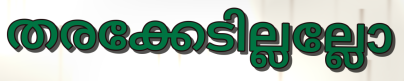
തരക്കേടില്ലല്ലോ